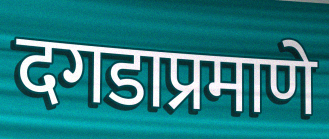
दगडाप्रमाणे